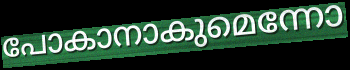
പോകാനാകുമെന്നോ